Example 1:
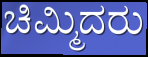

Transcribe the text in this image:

ಚಿಮ್ಮಿದರು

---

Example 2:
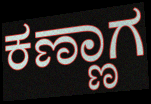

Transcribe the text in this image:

ಕಣ್ಣಾಗ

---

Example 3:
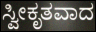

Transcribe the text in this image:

ಸ್ವೀಕೃತವಾದ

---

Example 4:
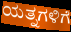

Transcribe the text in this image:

ಯತ್ನಗಳಿಗೆ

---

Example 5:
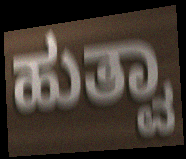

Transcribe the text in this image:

ಹುತ್ವಾ